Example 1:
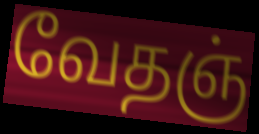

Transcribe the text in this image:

வேதஞ்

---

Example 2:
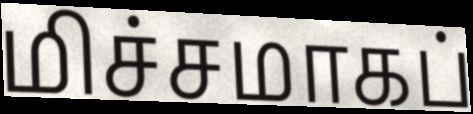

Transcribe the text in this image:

மிச்சமாகப்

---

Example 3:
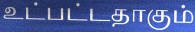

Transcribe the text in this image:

உட்பட்டதாகும்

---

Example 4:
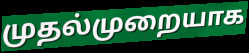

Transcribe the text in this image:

முதல்முறையாக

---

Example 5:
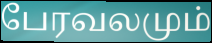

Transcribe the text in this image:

பேரவலமும்